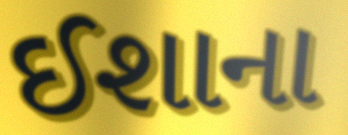
ઈશાના